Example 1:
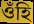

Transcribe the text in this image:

ওঁহি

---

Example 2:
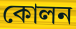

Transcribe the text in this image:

কোলন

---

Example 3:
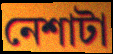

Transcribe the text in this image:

নেশাটা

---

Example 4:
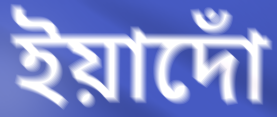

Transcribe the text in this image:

ইয়াদোঁ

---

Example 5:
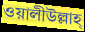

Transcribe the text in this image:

ওয়ালীউল্লাহ্